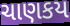
ચાણકય